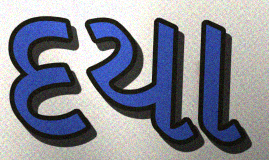
દયા